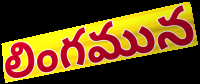
లింగమున